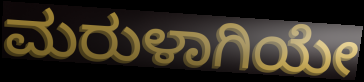
ಮರುಳಾಗಿಯೇ